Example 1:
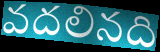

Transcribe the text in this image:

వదలినది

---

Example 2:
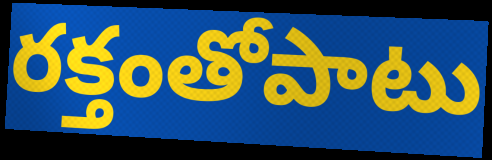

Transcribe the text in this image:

రక్తంతోపాటు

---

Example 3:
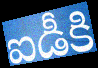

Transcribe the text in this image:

ఐడీకి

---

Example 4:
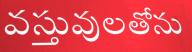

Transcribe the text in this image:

వస్తువులతోను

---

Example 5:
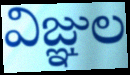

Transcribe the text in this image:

విజ్ఞుల